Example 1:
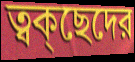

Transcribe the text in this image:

ত্বক্ছেদের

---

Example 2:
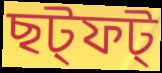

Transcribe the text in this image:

ছট্‌ফট্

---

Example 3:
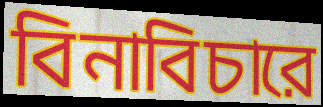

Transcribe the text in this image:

বিনাবিচারে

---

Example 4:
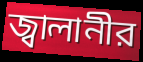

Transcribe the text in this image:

জ্বালানীর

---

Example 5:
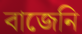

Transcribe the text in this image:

বাজেনি